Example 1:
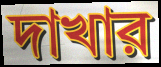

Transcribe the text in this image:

দাখার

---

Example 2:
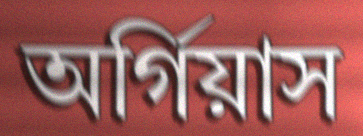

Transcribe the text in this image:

অর্গিয়াস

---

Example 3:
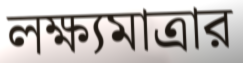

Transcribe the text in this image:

লক্ষ্যমাত্রার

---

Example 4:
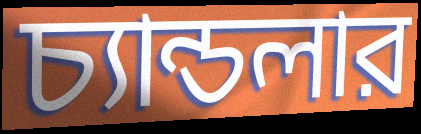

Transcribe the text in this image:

চ্যান্ডলার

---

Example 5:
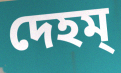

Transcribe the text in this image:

দেহম্